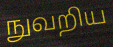
நுவறிய